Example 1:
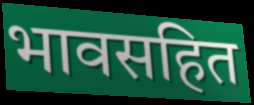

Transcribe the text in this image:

भावसहित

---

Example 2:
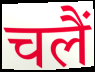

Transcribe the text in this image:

चलैं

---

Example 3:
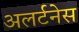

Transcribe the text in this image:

अलर्टनेस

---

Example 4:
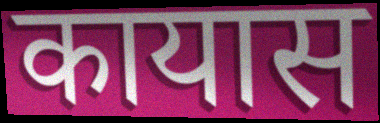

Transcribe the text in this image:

कायास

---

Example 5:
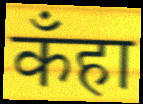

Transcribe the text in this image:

कँहा